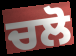
ਚਲੋ